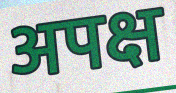
अपक्ष